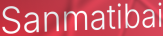
Sanmatibai